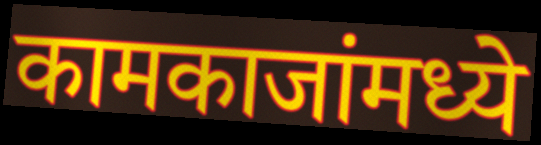
कामकाजांमध्ये